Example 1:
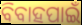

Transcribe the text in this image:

ବିବାହପାଇଁ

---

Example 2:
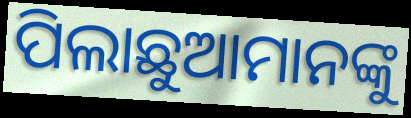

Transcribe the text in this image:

ପିଲାଛୁଆମାନଙ୍କୁ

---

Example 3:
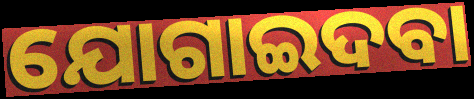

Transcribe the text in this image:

ଯୋଗାଇଦବା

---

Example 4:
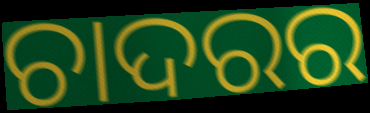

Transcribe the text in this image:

ଚାଦରର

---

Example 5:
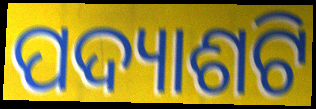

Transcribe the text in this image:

ପଦ୍ୟାଶଟି